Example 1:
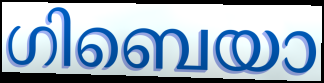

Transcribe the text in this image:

ഗിബെയാ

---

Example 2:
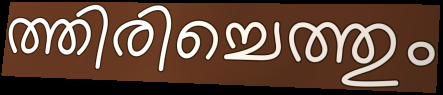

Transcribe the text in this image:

ത്തിരിച്ചെത്തും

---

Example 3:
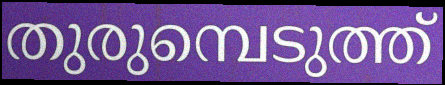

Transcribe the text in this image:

തുരുമ്പെടുത്ത്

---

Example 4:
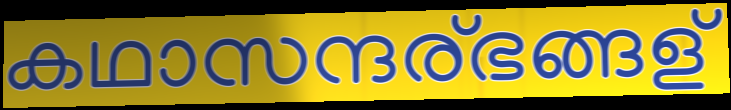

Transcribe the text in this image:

കഥാസന്ദര്ഭങ്ങള്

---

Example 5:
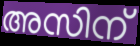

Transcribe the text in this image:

അസിന്